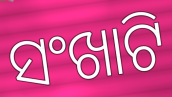
ସଂଖାଟି